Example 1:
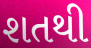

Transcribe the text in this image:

શતથી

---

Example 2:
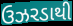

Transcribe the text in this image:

ઉઝરડાથી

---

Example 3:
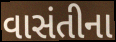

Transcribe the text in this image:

વાસંતીના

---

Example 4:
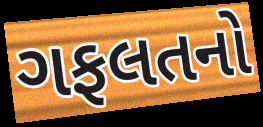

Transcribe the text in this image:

ગફલતનો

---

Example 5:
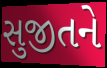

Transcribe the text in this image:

સુજીતને